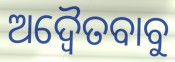
ଅଦ୍ୱୈତବାବୁ